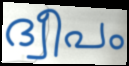
ദ്വീപം